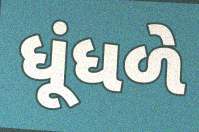
ધૂંધળે